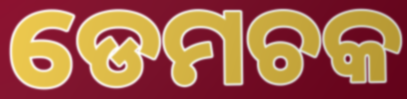
ଡେମଚକ